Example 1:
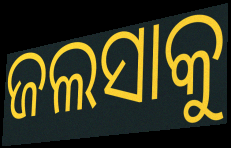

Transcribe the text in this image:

ଜଲସାକୁ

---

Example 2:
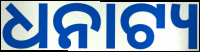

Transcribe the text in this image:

ଧନାଟ୍ୟ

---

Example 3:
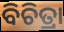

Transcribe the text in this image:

ବିଚିତ୍ରା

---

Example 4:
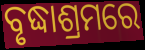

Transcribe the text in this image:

ବୃଦ୍ଧାଶ୍ରମରେ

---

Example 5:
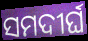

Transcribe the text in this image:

ସମଦୀର୍ଘ